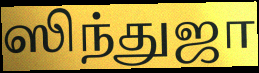
ஸிந்துஜா